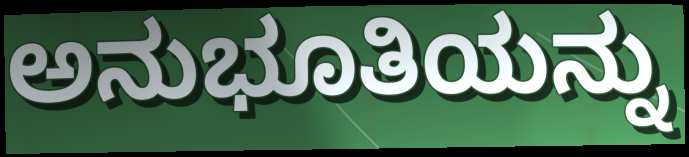
ಅನುಭೂತಿಯನ್ನು